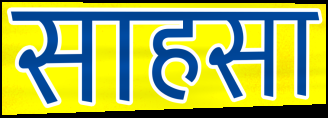
साहसा